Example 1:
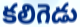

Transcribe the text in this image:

కలిగెడు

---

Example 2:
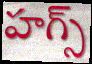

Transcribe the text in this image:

హగ్స్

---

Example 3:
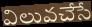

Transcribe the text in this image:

విలువచేసే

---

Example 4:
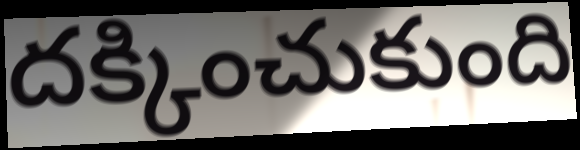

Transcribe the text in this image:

దక్కించుకుంది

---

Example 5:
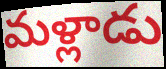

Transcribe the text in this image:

మళ్లాడు